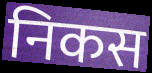
निकस